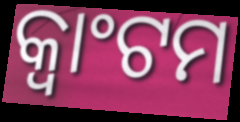
କ୍ୱାଂଟମ